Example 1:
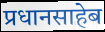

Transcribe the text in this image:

प्रधानसाहेब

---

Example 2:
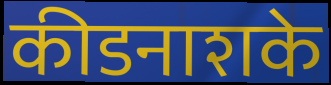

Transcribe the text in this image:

कीडनाशके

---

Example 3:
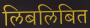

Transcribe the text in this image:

लिबलिबित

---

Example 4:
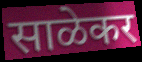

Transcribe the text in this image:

साळेकर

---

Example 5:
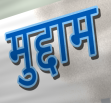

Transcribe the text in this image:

मुद्दाम